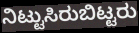
ನಿಟ್ಟುಸಿರುಬಿಟ್ಟರು